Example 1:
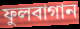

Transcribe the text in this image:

ফুলবাগান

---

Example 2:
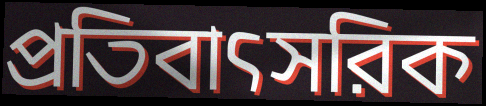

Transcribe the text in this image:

প্রতিবাৎসরিক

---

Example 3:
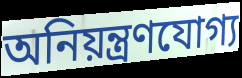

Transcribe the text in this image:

অনিয়ন্ত্রণযোগ্য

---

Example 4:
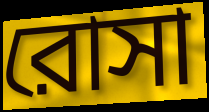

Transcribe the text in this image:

রোসা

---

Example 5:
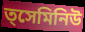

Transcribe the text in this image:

ত্সেমিনিউ